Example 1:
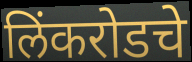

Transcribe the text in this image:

लिंकरोडचे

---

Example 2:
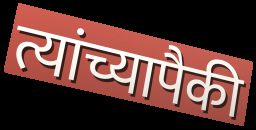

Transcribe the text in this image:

त्यांच्यापैकी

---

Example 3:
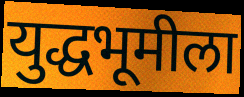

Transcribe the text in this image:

युद्धभूमीला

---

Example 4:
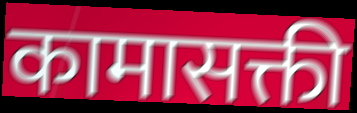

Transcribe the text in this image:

कामासक्ती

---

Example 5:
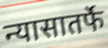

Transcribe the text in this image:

न्यासातर्फे